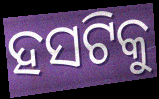
ହସଟିକୁ